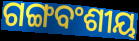
ଗଙ୍ଗବଂଶୀୟ